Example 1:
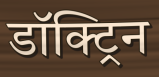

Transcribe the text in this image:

डॉक्ट्रिन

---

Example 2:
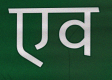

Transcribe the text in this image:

एव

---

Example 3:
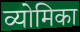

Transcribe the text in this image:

व्योमिका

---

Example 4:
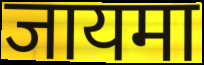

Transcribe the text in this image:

जायमा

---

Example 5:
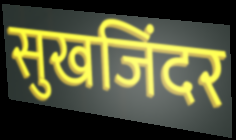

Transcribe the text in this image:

सुखजिंदर